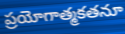
ప్రయోగాత్మకతనూ